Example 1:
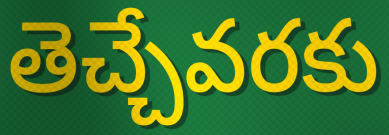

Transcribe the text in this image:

తెచ్చేవరకు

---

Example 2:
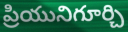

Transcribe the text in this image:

ప్రియునిగూర్చి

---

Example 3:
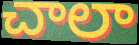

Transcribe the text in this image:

చాలా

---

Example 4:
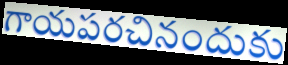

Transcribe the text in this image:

గాయపరచినందుకు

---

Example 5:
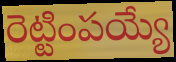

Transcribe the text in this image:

రెట్టింపయ్యే